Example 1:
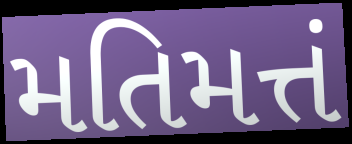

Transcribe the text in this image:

મતિમત્તં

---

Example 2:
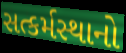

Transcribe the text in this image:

સત્કર્મસ્થાનો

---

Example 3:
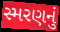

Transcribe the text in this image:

સ્મરણનું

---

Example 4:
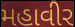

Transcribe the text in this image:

મહાવીર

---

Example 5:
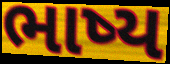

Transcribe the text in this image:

ભાષ્ય